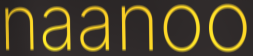
naanoo